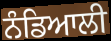
ਨੰਡਿਆਲੀ